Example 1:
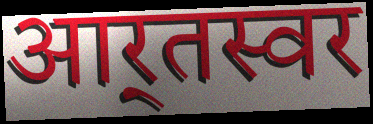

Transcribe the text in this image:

आर्तस्वर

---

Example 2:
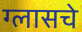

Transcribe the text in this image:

ग्लासचे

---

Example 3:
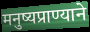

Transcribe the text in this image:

मनुष्यप्राण्याने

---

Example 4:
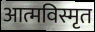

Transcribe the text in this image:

आत्मविस्मृत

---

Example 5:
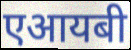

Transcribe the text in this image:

एआयबी